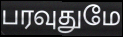
பரவுதுமே